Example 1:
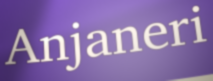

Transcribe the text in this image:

Anjaneri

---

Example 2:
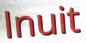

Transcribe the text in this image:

Inuit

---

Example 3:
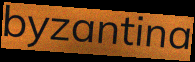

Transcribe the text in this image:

byzantina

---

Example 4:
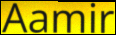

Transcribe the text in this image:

Aamir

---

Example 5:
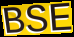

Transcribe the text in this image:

BSE